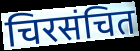
चिरसंचित